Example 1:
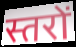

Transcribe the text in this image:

स्तरों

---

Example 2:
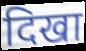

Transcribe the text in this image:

दिखा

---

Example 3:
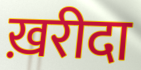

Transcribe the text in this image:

ख़रीदा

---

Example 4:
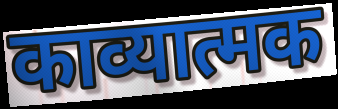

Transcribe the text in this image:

काव्यात्मक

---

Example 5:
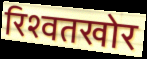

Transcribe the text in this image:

रिश्वतखोर